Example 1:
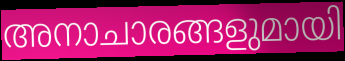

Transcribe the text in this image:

അനാചാരങ്ങളുമായി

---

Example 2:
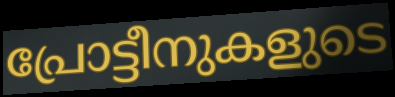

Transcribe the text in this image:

പ്രോട്ടീനുകളുടെ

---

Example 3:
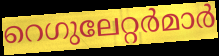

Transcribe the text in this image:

റെഗുലേറ്റർമാർ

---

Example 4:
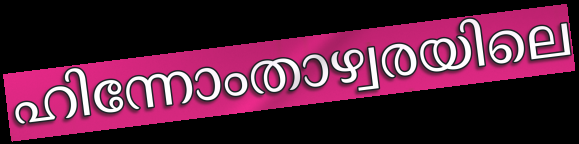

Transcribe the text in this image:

ഹിന്നോംതാഴ്വരയിലെ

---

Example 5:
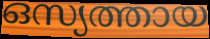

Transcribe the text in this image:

ഒസ്യത്തായ